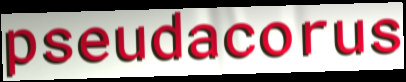
pseudacorus